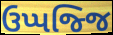
ઉપ્પજ્જિ